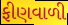
ફીણવાળી